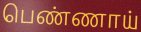
பெண்ணாய்